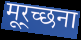
मूर्च्छना